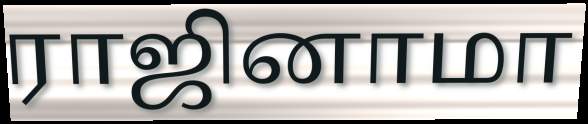
ராஜினாமா